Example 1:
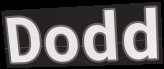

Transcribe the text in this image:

Dodd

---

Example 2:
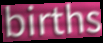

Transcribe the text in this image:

births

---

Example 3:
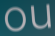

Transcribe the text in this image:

ou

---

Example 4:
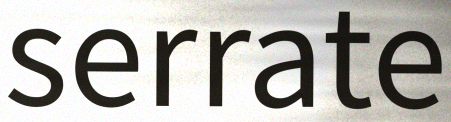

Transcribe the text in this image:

serrate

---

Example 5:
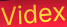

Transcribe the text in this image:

Videx